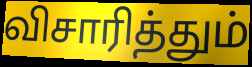
விசாரித்தும்